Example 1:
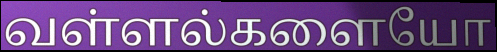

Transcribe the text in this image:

வள்ளல்களையோ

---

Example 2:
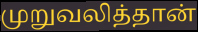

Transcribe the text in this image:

முறுவலித்தான்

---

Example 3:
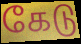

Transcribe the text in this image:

கேடு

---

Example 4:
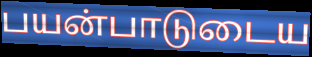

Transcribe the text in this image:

பயன்பாடுடைய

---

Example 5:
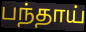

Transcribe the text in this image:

பந்தாய்